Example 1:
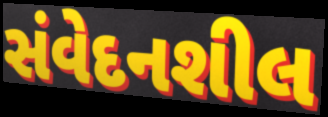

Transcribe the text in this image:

સંવેદનશીલ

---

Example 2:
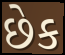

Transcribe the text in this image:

છેક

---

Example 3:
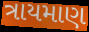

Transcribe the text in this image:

ત્રાયમાણ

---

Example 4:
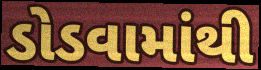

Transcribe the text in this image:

ડોડવામાંથી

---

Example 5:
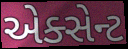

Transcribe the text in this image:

એક્સેન્ટ